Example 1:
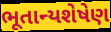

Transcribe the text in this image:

ભૂતાન્યશેષેણ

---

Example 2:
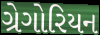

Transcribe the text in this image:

ગ્રેગોરિયન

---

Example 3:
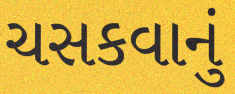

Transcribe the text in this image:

ચસકવાનું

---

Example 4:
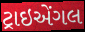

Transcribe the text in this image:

ટ્રાઇએંગલ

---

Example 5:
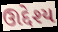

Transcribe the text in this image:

ઊદ્દેશ્ય